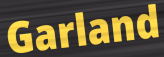
Garland